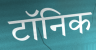
टॉनिक